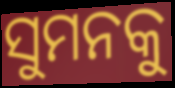
ସୁମନକୁ